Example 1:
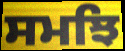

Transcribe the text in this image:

ਸਮਝਿ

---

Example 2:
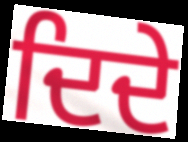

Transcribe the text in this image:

ਦਿਦੇ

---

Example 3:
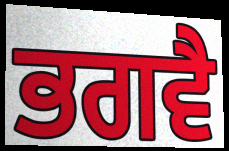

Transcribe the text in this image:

ਭਗਵੈ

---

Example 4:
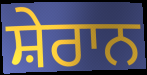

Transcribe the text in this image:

ਸ਼ੇਰਾਨ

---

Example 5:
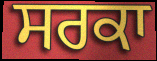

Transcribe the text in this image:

ਸਰਕਾ